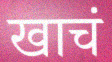
खाचं